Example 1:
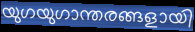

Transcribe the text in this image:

യുഗയുഗാന്തരങ്ങളായി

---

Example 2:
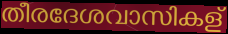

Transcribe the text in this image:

തീരദേശവാസികള്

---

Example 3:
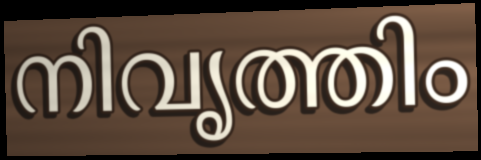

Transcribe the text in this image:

നിവൃത്തിം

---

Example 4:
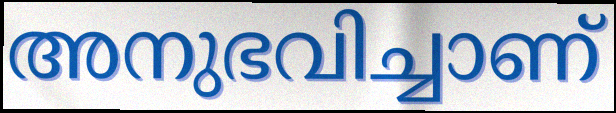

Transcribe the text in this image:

അനുഭവിച്ചാണ്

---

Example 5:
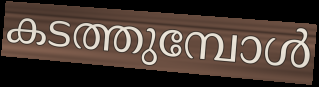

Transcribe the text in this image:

കടത്തുമ്പോൾ